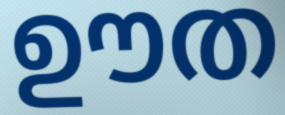
ഊത